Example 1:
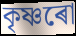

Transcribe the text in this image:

কৃষ্ণৰো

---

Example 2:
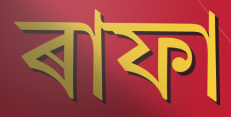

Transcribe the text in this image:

ৰাফা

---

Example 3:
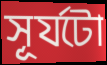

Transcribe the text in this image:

সূৰ্যটো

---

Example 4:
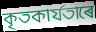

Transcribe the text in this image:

কৃতকাৰ্যতাৰে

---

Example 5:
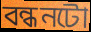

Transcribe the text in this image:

বন্ধনটো